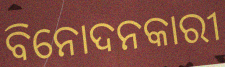
ବିନୋଦନକାରୀ